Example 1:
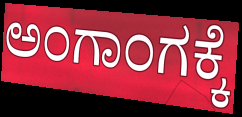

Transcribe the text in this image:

ಅಂಗಾಂಗಕ್ಕೆ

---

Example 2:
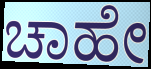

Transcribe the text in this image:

ಚಾಹೇ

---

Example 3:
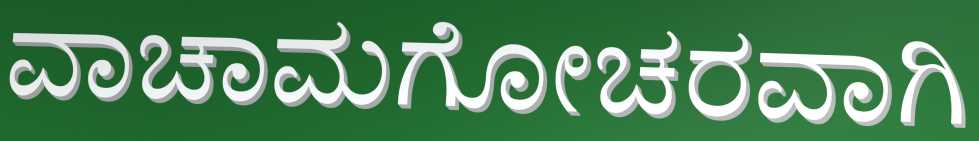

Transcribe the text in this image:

ವಾಚಾಮಗೋಚರವಾಗಿ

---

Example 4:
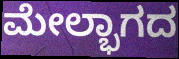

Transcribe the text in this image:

ಮೇಲ್ಭಾಗದ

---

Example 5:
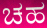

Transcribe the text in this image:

ಚಹ